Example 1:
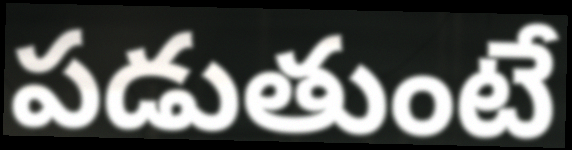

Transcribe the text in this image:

పడుతుంటే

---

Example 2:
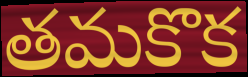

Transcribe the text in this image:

తమకొక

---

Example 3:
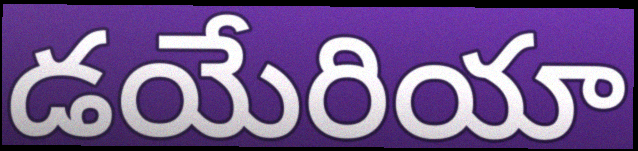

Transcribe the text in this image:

డయేరియా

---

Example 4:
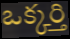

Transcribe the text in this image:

ఒక్కర్తి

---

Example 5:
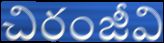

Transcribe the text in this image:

చిరంజీవి